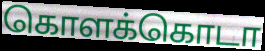
கொளக்கொடா